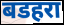
बडहरा